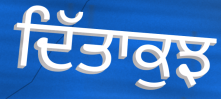
ਦਿੱਤਾਕੁਝ